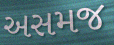
અસમજ